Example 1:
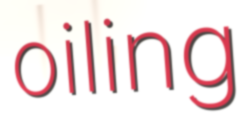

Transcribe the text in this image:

oiling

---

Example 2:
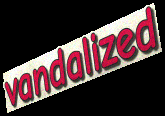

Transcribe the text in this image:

vandalized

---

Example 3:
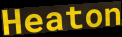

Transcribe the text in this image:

Heaton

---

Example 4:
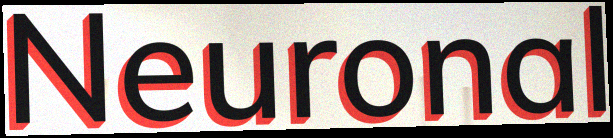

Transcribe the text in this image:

Neuronal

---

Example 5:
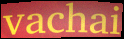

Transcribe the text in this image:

vachai